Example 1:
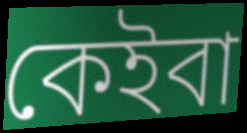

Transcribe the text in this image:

কেইবা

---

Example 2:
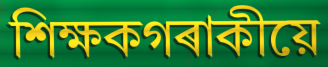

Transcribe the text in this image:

শিক্ষকগৰাকীয়ে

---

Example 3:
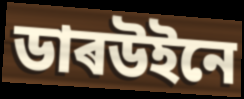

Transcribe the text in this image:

ডাৰউইনে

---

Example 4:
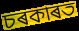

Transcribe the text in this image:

চৰকাৰত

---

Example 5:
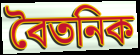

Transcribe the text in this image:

বৈতনিক